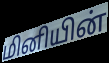
மினியின்